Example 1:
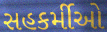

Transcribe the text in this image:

સહકર્મીઓ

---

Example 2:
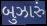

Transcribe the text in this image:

બુઝારું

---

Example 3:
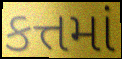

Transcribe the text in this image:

કત્તમાં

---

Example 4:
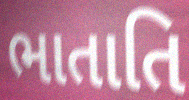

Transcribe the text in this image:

ભાતાતિ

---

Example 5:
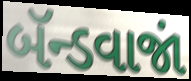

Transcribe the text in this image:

બૅન્ડવાજાં